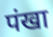
पंखा